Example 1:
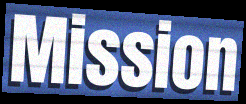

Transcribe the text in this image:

Mission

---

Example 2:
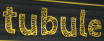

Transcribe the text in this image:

tubule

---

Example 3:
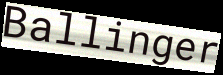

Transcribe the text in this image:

Ballinger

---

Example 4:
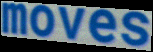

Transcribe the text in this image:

moves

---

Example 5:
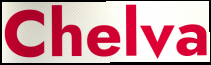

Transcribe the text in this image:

Chelva